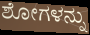
ಶೋಗಳನ್ನು